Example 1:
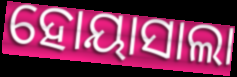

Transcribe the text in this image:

ହୋୟାସାଲା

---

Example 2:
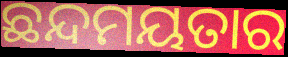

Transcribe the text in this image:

ଛନ୍ଦମୟତାର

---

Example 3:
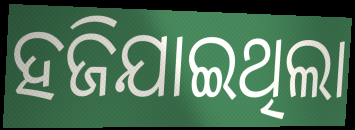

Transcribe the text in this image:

ହଜିଯାଇଥିଲା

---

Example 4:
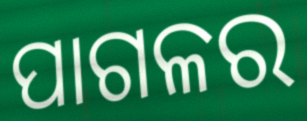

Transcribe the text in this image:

ପାଗଳର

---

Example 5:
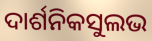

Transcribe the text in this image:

ଦାର୍ଶନିକସୁଲଭ